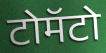
टोमॅटो